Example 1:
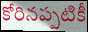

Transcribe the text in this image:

కోరినప్పటికీ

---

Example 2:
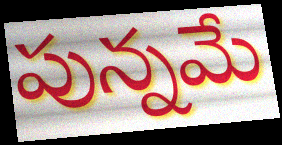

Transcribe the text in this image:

పున్నమే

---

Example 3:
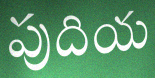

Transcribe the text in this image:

పుదియ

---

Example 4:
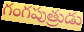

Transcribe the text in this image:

గంగపుత్రుడు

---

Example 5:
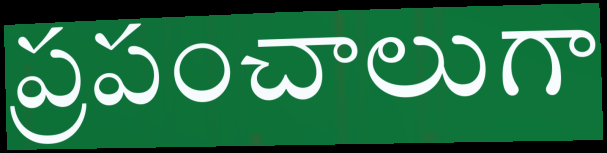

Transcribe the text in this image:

ప్రపంచాలుగా